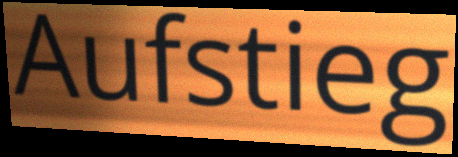
Aufstieg